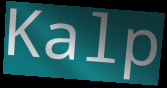
Kalp